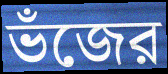
ভঁজের